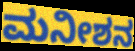
ಮನೀಶನ